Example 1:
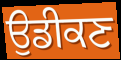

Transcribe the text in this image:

ਉਡੀਕਣ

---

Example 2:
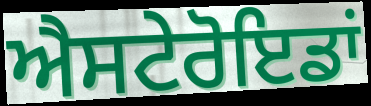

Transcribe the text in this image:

ਐਸਟੇਰੋਇਡਾਂ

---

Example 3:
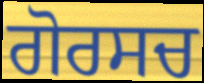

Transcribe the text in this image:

ਗੋਰਸਚ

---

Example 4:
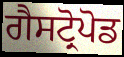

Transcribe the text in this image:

ਗੈਸਟ੍ਰੋਪੋਡ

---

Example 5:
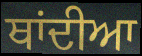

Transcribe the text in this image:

ਥਾਂਦੀਆ